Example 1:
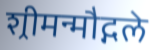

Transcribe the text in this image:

श्रीमन्मौद्गले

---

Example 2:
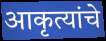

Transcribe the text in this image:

आकृत्यांचे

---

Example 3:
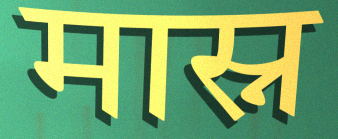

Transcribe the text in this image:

मास्न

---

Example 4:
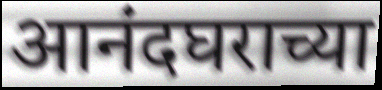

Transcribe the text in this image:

आनंदघराच्या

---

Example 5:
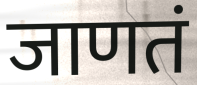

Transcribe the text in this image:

जाणतं